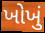
ખોખું